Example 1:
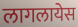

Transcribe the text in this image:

लागलायेस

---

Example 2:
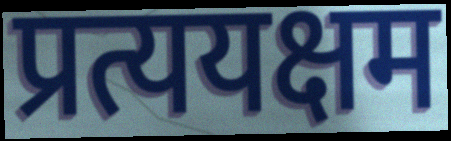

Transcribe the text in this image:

प्रत्ययक्षम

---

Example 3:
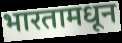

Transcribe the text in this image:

भारतामधून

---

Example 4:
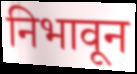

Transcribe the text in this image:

निभावून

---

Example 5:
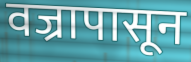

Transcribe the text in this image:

वज्रापासून